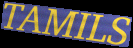
TAMILS